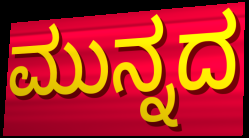
ಮುನ್ನದ